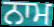
ਨਾਮ